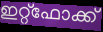
ഇറ്റ്ഫോക്ക്